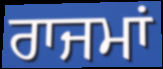
ਰਾਜਮਾਂ